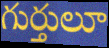
గుర్తులూ